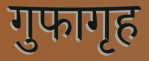
गुफागृह